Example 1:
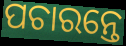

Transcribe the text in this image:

ପଚାରନ୍ତେ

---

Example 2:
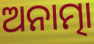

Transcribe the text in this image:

ଅନାତ୍ମା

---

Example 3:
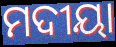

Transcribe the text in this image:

ମଦୀୟା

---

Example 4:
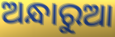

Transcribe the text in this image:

ଅନ୍ଧାରୁଆ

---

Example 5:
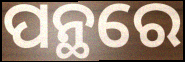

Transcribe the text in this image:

ପନ୍ଥରେ